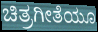
ಚಿತ್ರಗೀತೆಯೂ